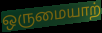
ஒருமையாற்